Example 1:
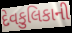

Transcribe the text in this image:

દેવકુલિકાની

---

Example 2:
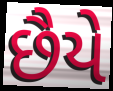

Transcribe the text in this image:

છૈયે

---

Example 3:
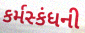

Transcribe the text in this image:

કર્મસ્કંધની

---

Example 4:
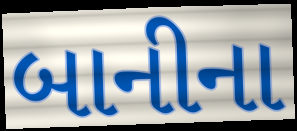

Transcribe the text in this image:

બાનીના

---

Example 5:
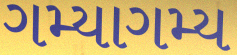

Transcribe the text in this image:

ગમ્યાગમ્ય